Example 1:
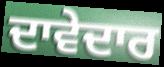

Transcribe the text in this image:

ਦਾਵੇਦਾਰ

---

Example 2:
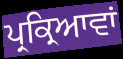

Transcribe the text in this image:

ਪ੍ਰਕ੍ਰਿਆਵਾਂ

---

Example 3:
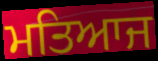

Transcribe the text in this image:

ਮਤਿਆਜ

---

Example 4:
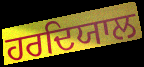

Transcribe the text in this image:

ਹਰਦਿਯਾਲ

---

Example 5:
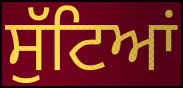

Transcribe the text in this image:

ਸੁੱਟਿਆਂ